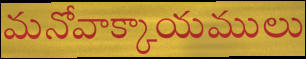
మనోవాక్కాయములు